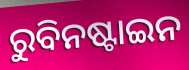
ରୁବିନଷ୍ଟାଇନ